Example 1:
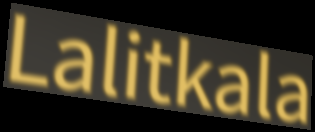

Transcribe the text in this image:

Lalitkala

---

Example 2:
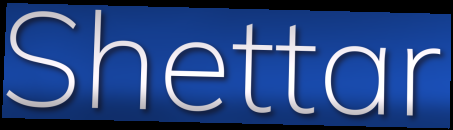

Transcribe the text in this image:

Shettar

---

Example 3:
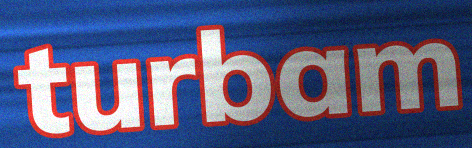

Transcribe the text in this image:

turbam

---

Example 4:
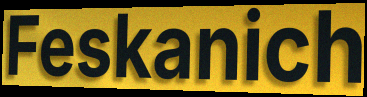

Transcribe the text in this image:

Feskanich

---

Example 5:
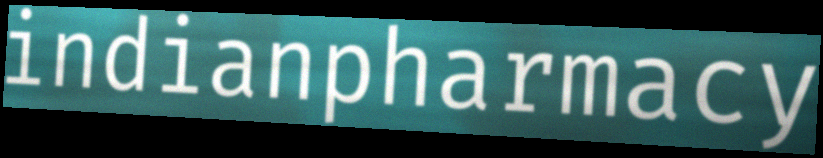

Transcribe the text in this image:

indianpharmacy